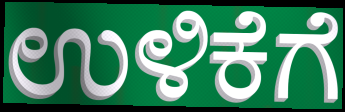
ಉಳಿಕೆಗೆ